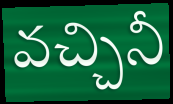
వచ్చినీ